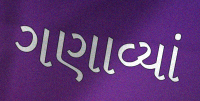
ગણાવ્યાં